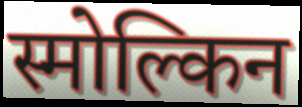
स्मोल्किन